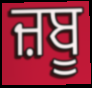
ਜ਼ਬੂ